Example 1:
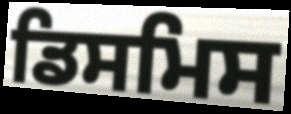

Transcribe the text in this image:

ਡਿਸਮਿਸ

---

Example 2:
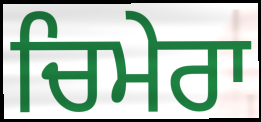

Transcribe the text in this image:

ਚਿਮੇਰਾ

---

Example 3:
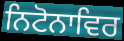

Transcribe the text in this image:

ਨਿਟੋਨਾਵਿਰ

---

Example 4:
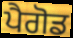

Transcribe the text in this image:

ਪੈਗੋਡ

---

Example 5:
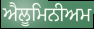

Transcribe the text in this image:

ਐਲੂਮਿਨੀਅਮ